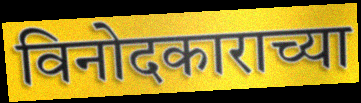
विनोदकाराच्या